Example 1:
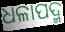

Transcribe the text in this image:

ଧଳାପଦ୍ମ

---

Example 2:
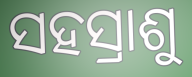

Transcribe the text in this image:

ସହସ୍ରାଶୁ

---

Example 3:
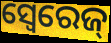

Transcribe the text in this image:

ସ୍ବେରେଜ୍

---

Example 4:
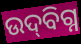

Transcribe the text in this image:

ଉଦ୍‍ବିଗ୍ନ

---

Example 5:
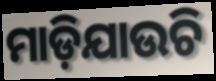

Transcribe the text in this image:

ମାଡ଼ିଯାଉଚି